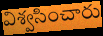
విశ్వసించారు